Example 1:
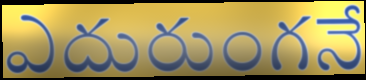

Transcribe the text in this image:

ఎదురుంగనే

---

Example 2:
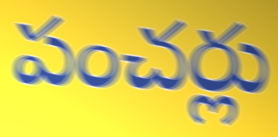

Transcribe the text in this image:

పంచర్లు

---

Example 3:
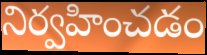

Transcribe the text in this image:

నిర్వహించడం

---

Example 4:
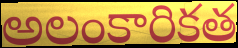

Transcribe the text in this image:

అలంకారికత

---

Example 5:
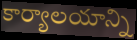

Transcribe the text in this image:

కార్యాలయాన్ని